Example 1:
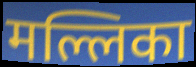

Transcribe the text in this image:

मल्लिका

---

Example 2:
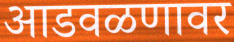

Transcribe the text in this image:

आडवळणावर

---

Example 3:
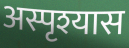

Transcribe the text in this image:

अस्पृश्यास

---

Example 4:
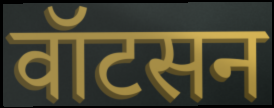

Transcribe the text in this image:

वॉटसन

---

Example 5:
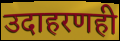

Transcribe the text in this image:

उदाहरणही